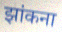
झांकना